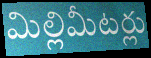
మిల్లిమీటర్లు